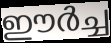
ഈർച്ച